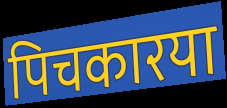
पिचकारया